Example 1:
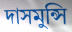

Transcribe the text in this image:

দাসমুন্সি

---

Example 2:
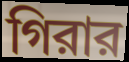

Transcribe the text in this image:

গিরার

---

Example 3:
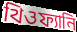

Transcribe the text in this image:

থিওফ্যানি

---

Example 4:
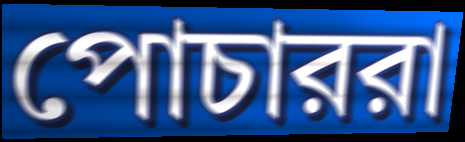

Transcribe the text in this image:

পোচাররা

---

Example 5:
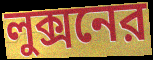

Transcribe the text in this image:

লুক্সনের